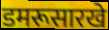
डमरूसारखे